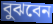
বুঝবেন